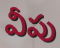
వీపు